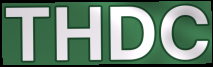
THDC